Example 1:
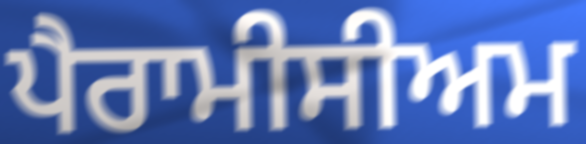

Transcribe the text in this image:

ਪੈਰਾਮੀਸੀਅਮ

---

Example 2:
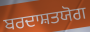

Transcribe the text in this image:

ਬਰਦਾਸ਼ਤਯੋਗ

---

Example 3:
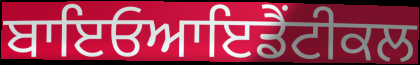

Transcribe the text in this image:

ਬਾਇਓਆਇਡੈਂਟੀਕਲ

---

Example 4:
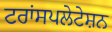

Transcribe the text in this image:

ਟਰਾਂਸਪਲੇਟੇਸ਼ਨ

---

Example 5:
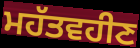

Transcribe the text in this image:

ਮਹੱਤਵਹੀਣ